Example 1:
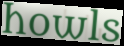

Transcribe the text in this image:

howls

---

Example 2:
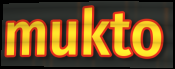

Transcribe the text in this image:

mukto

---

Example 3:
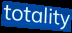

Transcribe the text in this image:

totality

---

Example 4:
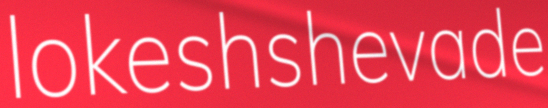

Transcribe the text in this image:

lokeshshevade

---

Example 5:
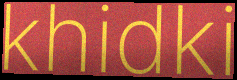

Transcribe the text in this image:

khidki